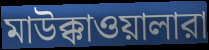
মাউক্কাওয়ালারা